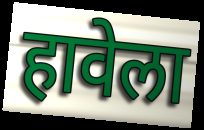
हावेला